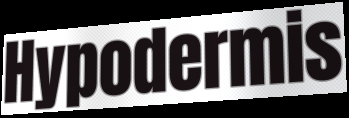
Hypodermis